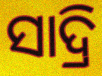
ସାଦ୍ରି